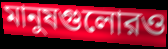
মানুষগুলোরও